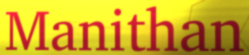
Manithan